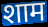
शाम